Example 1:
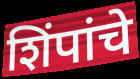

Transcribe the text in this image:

शिंपांचे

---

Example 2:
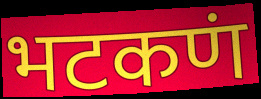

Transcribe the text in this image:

भटकणं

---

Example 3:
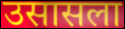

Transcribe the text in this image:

उसासला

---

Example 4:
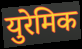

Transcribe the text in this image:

युरेमिक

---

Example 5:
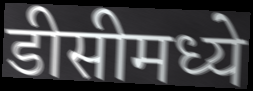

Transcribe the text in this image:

डीसीमध्ये